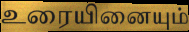
உரையினையும்